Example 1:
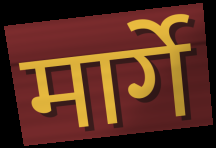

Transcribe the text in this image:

मार्गे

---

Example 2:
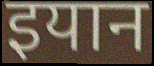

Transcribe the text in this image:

इयान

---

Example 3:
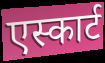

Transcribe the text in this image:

एस्कार्ट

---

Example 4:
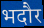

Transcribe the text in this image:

भदौर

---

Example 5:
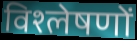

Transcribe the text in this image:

विश्लेषणों